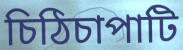
চিঠিচাপাটি